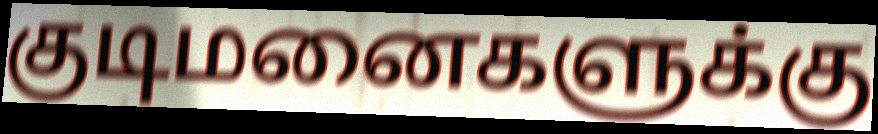
குடிமனைகளுக்கு